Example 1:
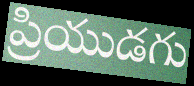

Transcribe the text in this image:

ప్రియుడగు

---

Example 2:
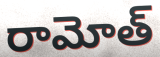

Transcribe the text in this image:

రామోత్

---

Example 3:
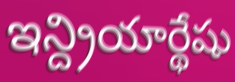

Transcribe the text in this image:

ఇన్ద్రియార్థేషు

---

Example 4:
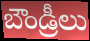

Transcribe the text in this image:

బౌండ్రీలు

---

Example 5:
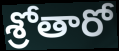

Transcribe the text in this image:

శ్రోతారో